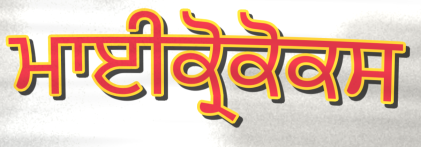
ਮਾਈਕ੍ਰੋਕੋਕਸ